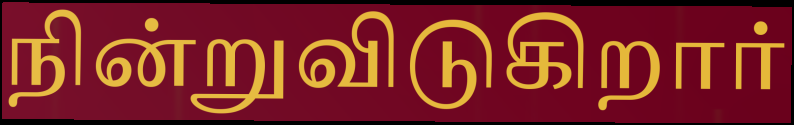
நின்றுவிடுகிறார்